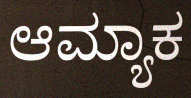
ಆಮ್ಯಾಕ